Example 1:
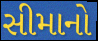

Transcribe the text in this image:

સીમાનો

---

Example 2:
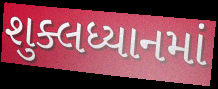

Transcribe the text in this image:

શુક્લધ્યાનમાં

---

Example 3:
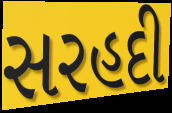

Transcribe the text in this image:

સરહદી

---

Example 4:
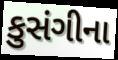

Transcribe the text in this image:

કુસંગીના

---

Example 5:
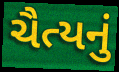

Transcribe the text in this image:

ચૈત્યનું